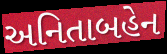
અનિતાબહેન